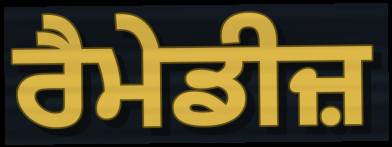
ਰੈਮੇਡੀਜ਼